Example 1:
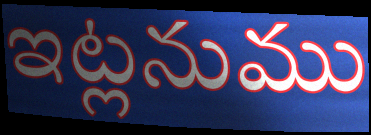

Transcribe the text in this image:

ఇట్లనుము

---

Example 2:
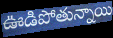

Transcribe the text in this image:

ఊడిపోతున్నాయి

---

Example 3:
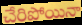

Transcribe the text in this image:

చేరిపోయినా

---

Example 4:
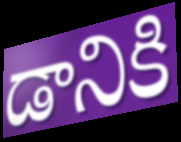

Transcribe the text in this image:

డానికి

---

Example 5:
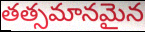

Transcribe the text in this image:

తత్సమానమైన